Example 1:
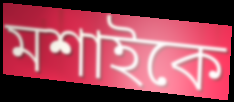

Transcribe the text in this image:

মশাইকে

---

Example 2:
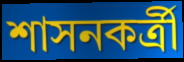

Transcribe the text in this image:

শাসনকর্ত্রী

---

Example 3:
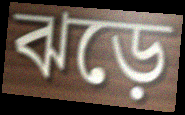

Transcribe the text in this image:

ঝড়ে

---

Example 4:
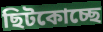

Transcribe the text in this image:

ছিটকোচ্ছে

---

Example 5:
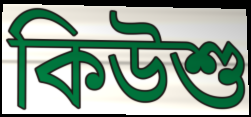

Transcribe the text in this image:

কিউশু